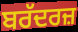
ਬਰੱਦਰਜ਼